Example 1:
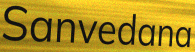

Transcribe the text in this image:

Sanvedana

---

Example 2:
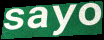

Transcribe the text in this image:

sayo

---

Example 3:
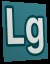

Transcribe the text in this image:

Lg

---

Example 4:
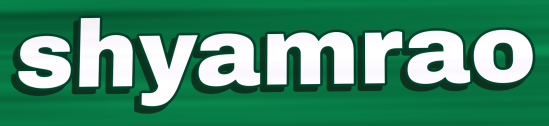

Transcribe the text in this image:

shyamrao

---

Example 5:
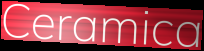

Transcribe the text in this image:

Ceramica